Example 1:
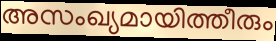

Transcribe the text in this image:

അസംഖ്യമായിത്തീരും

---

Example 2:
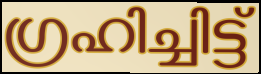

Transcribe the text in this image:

ഗ്രഹിച്ചിട്ട്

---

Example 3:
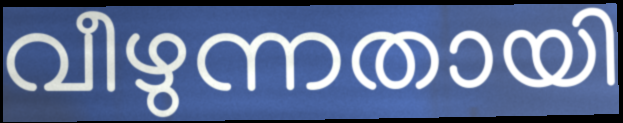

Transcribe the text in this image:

വീഴുന്നതായി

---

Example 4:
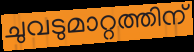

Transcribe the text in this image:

ചുവടുമാറ്റത്തിന്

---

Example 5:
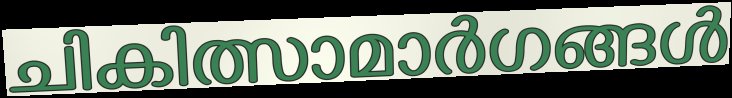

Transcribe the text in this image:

ചികിത്സാമാർഗങ്ങൾ